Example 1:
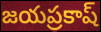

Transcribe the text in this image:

జయప్రకాష్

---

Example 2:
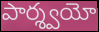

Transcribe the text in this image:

పార్శ్వయో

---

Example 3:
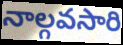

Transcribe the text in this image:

నాల్గవసారి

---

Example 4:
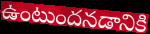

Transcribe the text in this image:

ఉంటుందనడానికి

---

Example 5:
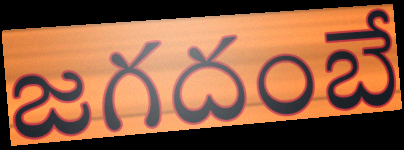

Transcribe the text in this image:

జగదంబే